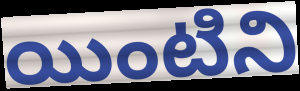
యింటిని